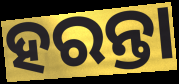
ହରନ୍ତା